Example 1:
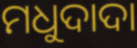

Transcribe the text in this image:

ମଧୁଦାଦା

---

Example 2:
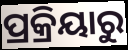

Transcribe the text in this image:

ପ୍ରକ୍ରିୟାରୁ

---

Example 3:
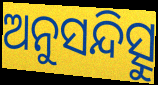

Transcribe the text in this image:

ଅନୁସନ୍ଦିତ୍ସୁ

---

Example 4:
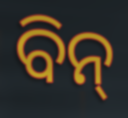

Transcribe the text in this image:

ବିନ୍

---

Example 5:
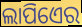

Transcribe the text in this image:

ଲାପିଏେର